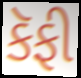
કૅફી